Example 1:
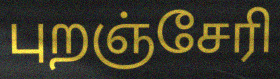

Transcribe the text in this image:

புறஞ்சேரி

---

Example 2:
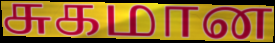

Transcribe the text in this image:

சுகமான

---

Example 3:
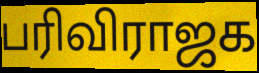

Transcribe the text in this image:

பரிவிராஜக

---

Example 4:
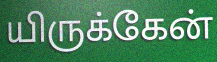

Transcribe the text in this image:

யிருக்கேன்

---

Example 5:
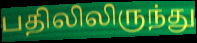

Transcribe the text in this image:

பதிலிலிருந்து